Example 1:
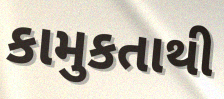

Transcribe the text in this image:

કામુકતાથી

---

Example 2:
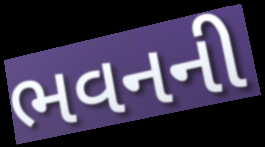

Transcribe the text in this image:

ભવનની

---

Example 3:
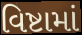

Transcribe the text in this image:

વિષ્ટામાં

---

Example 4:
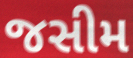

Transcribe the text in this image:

જસીમ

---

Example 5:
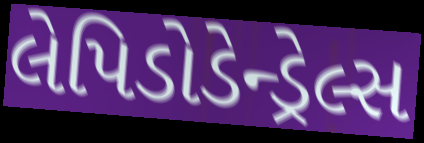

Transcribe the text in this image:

લેપિડોડેન્ડ્રેલ્સ